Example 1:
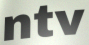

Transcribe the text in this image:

ntv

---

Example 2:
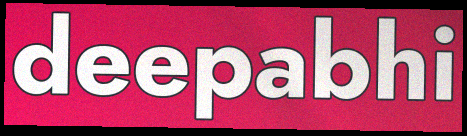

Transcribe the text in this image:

deepabhi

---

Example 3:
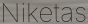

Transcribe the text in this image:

Niketas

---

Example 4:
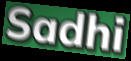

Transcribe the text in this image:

Sadhi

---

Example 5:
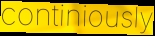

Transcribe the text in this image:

continiously